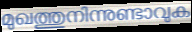
മുഖത്തുനിന്നുണ്ടാവുക